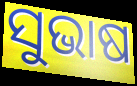
ସୁଭାଷ